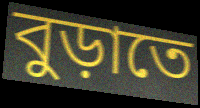
বুড়াতে